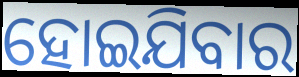
ହୋଇଯିବାର